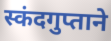
स्कंदगुप्ताने